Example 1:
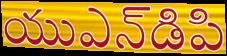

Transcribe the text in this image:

యుఎన్‌డిపి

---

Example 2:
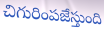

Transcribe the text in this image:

చిగురింపజేస్తుంది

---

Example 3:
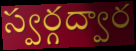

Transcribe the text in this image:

స్వర్గద్వార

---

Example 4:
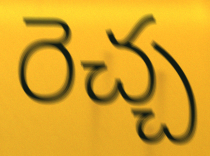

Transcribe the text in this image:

రెచ్చ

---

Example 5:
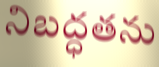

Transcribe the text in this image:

నిబద్ధతను